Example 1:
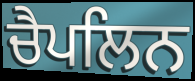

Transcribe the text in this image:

ਚੈਪਲਿਨ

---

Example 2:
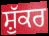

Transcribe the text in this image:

ਸ਼ੁੱਕਰ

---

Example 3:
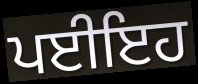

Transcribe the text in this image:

ਪਈਇਹ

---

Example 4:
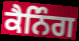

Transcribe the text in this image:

ਕੈਨਿੰਗ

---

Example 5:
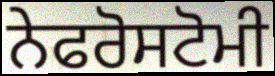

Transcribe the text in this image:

ਨੇਫਰੋਸਟੋਮੀ